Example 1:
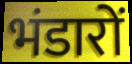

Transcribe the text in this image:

भंडारों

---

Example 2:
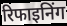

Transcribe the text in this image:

रिफाइनिंग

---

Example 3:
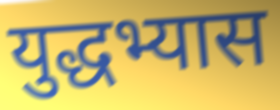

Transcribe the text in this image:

युद्धभ्यास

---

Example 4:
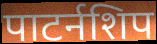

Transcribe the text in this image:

पाटर्नशिप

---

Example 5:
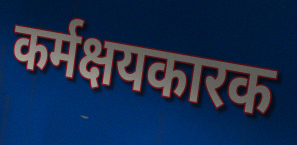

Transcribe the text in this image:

कर्मक्षयकारक